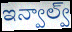
ఇన్వాల్వ్